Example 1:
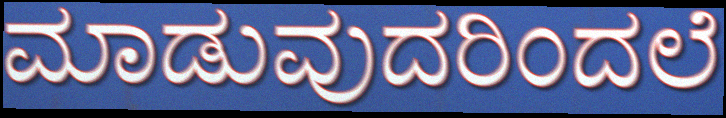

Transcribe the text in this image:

ಮಾಡುವುದರಿಂದಲೆ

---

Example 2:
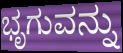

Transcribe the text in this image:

ಭೃಗುವನ್ನು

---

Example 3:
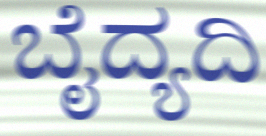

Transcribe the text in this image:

ಬೈದ್ಯದಿ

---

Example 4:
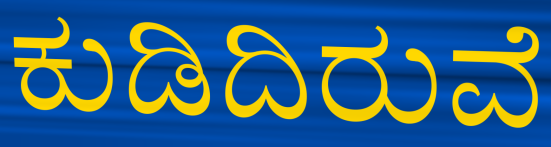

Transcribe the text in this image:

ಕುಡಿದಿರುವೆ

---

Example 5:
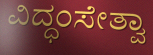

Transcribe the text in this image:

ವಿದ್ಧಂಸೇತ್ವಾ